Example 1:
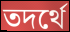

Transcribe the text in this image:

তদর্থে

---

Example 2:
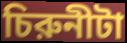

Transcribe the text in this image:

চিরুনীটা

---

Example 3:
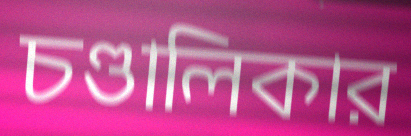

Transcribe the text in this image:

চণ্ডালিকার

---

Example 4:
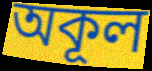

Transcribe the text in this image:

অকূল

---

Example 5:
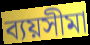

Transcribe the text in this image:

ব্যয়সীমা